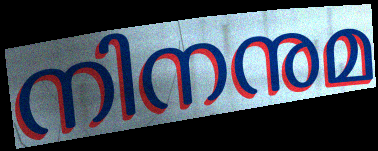
നിനനുമ